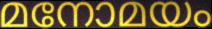
മനോമയം